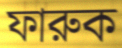
ফারুক